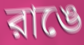
রাঙে